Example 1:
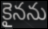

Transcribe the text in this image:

కైనను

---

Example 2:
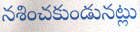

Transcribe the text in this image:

నశించకుండునట్లు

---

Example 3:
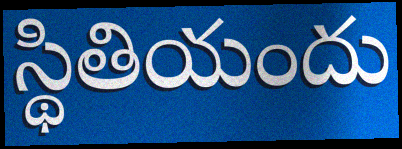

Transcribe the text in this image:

స్థితియందు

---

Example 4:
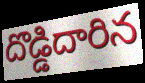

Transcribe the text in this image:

దొడ్డిదారిన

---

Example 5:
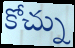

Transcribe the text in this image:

కోచ్ను